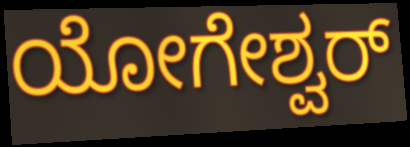
ಯೋಗೇಶ್ವರ್